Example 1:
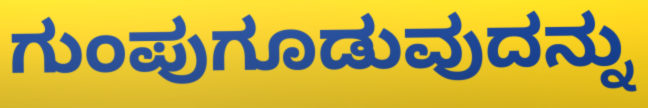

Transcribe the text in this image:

ಗುಂಪುಗೂಡುವುದನ್ನು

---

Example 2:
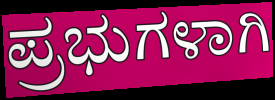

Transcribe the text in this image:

ಪ್ರಭುಗಳಾಗಿ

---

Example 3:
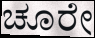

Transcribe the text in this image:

ಚೂರೇ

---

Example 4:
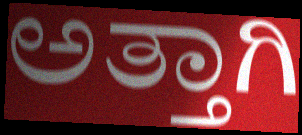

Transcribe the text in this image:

ಅತ್ತಾಗಿ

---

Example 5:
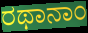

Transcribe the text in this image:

ರಥಾನಾಂ